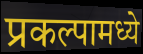
प्रकल्पामध्ये